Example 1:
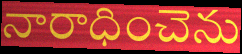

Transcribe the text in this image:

నారాధించెను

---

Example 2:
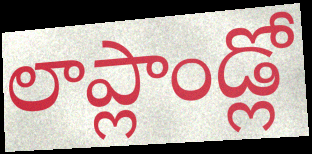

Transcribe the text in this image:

లాప్లాండ్లో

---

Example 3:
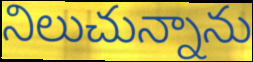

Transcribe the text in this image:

నిలుచున్నాను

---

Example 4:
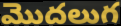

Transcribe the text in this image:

మొదలుగ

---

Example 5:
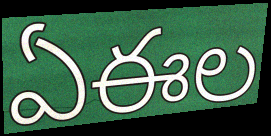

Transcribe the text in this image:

ఏఈల